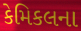
કેમિકલના